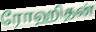
ரோஹிதன்